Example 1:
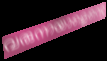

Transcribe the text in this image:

വരുന്നയാളെന്റെ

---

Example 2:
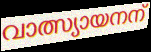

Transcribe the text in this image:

വാത്സ്യായനന്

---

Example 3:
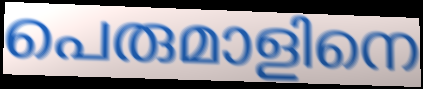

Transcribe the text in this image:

പെരുമാളിനെ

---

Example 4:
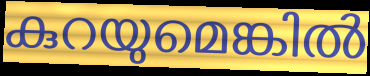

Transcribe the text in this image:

കുറയുമെങ്കിൽ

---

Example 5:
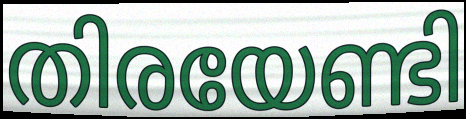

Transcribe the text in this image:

തിരയേണ്ടി